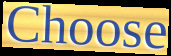
Choose